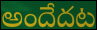
అందేదట